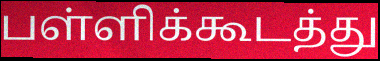
பள்ளிக்கூடத்து